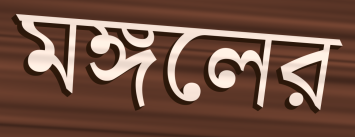
মঙ্গলের